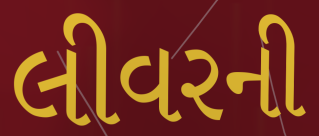
લીવરની